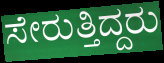
ಸೇರುತ್ತಿದ್ದರು